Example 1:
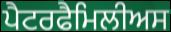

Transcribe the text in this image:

ਪੈਟਰਫੈਮਿਲੀਅਸ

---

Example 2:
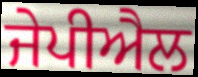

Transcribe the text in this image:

ਜੇਪੀਐਲ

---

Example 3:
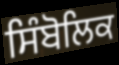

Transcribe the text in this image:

ਸਿੰਬੋਲਿਕ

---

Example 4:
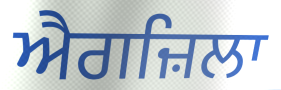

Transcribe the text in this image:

ਐਗਜ਼ਿਲਾ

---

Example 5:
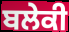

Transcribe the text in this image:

ਬਲੇਕੀ